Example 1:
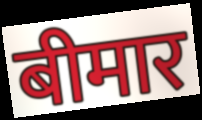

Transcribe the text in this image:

बीमार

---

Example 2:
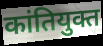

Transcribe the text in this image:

कांतियुक्त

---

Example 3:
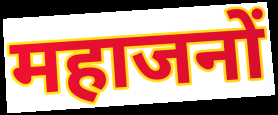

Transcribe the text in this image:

महाजनों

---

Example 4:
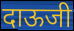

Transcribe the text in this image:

दाऊजी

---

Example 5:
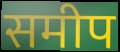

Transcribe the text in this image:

समीप